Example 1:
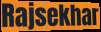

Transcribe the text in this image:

Rajsekhar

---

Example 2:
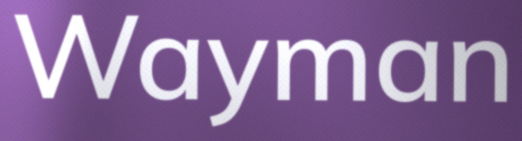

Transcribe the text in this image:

Wayman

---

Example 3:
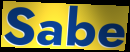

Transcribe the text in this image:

Sabe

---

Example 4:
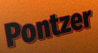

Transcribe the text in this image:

Pontzer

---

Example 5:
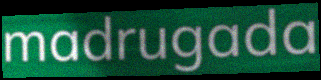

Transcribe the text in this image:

madrugada